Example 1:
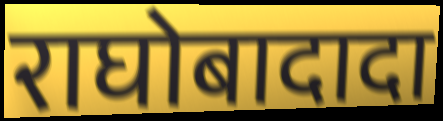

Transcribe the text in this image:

राघोबादादा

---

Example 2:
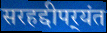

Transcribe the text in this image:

सरहद्दीपर्यंत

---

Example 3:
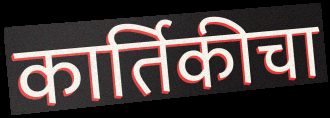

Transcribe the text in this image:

कार्तिकीचा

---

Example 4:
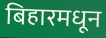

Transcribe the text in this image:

बिहारमधून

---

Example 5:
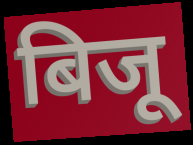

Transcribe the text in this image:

बिजू